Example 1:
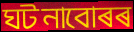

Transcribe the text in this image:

ঘটনাবোৰৰ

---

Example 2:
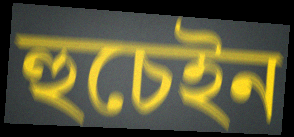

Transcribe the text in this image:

হুচেইন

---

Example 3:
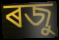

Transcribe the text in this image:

ৰজু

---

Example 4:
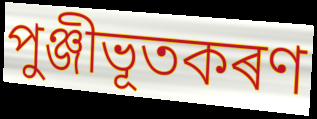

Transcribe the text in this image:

পুঞ্জীভূতকৰণ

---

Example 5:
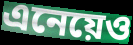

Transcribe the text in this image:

এনেয়েও